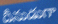
దీనుడుగా